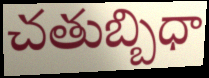
చతుబ్బిధా